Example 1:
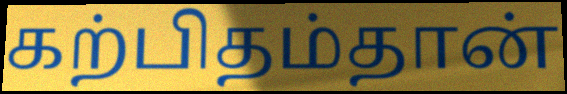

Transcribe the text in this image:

கற்பிதம்தான்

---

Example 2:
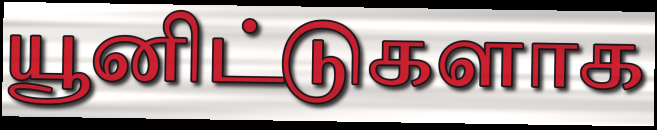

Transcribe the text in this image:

யூனிட்டுகளாக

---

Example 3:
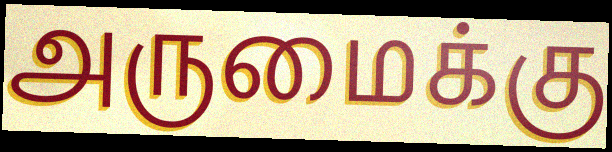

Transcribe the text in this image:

அருமைக்கு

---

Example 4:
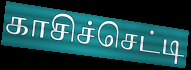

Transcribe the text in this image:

காசிச்செட்டி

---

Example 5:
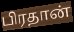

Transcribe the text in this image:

பிரதான்